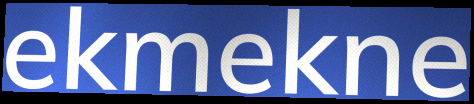
ekmekne